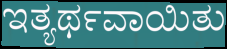
ಇತ್ಯರ್ಥವಾಯಿತು